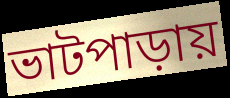
ভাটপাড়ায়